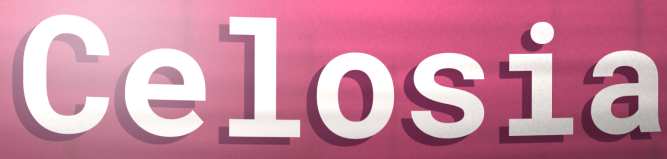
Celosia